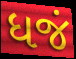
ધજં